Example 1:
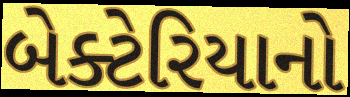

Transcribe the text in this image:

બેક્ટેરિયાનો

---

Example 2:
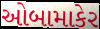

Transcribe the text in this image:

ઓબામાકેર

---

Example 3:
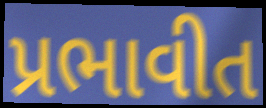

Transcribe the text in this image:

પ્રભાવીત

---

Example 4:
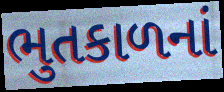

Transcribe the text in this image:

ભુતકાળનાં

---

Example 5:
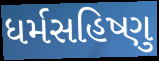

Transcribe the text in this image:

ધર્મસહિષ્ણુ